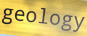
geology